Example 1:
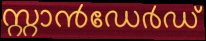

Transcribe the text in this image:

സ്റ്റാൻഡേർഡ്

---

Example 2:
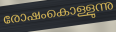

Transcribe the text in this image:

രോഷംകൊള്ളുന്നു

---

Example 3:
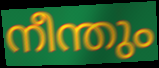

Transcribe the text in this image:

നീന്തും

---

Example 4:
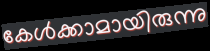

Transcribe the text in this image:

കേൾക്കാമായിരുന്നു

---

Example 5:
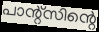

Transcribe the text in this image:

പാന്റ്സിന്റെ